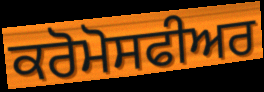
ਕਰੋਮੋਸਫੀਅਰ